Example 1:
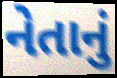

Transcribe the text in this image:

નેતાનું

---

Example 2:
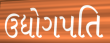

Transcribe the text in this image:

ઉદ્યોગપતિ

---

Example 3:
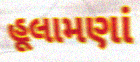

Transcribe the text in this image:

હૂલામણાં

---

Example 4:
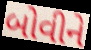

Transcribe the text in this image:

બોવીને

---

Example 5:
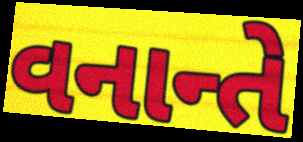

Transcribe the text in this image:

વનાન્તે